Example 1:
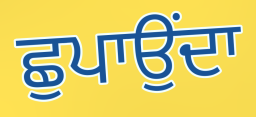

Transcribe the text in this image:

ਛੁਪਾਉਂਦਾ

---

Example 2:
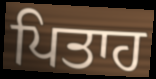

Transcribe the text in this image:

ਪਿਤਾਹ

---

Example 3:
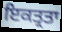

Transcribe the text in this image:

ਇਕਤ੍ਰਤਾ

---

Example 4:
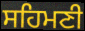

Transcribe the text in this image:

ਸਹਿਮਣੀ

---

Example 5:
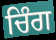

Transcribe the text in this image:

ਚਿੰਗ